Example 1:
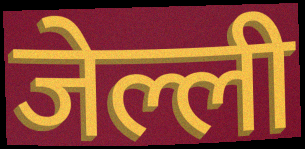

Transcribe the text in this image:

जेल्ली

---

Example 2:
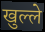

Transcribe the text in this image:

खुल्ले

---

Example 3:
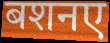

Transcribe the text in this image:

बशनए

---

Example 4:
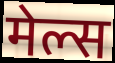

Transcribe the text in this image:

मेल्स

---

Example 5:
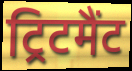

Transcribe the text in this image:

ट्रिटमैंट